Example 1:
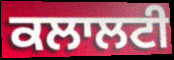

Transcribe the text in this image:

ਕਲਾਲਟੀ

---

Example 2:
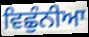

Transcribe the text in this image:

ਵਿਛੁੰਨੀਆ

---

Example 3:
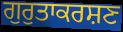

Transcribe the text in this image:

ਗੁਰੁਤਾਕਰਸ਼ਣ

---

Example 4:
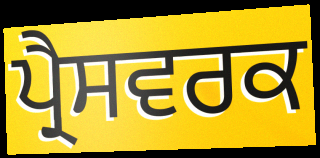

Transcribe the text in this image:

ਪ੍ਰੈਸਵਰਕ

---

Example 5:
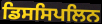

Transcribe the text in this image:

ਡਿਸਸਿਪਲਿਨ